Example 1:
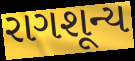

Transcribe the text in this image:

રાગશૂન્ય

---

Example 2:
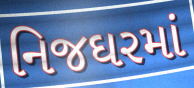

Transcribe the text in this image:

નિજઘરમાં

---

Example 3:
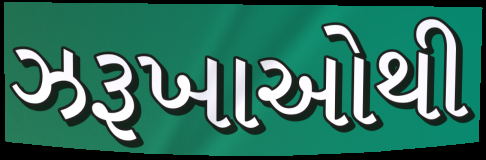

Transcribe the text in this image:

ઝરૂખાઓથી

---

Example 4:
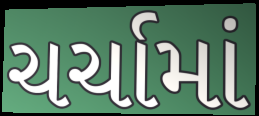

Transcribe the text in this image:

ચર્ચામાં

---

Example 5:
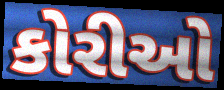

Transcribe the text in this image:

કોરીઓ